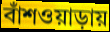
বাঁশওয়াড়ায়